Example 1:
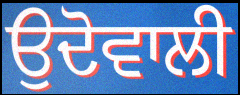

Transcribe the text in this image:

ਉਦੋਵਾਲੀ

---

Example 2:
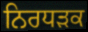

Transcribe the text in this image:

ਨਿਰਧੜਕ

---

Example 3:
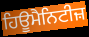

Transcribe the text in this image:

ਹਿਊਮੈਨਿਟੀਜ਼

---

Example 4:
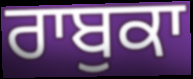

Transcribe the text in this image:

ਰਾਬੁਕਾ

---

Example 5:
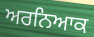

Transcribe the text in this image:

ਅਰਨਿਆਕ